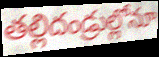
తల్లిదండ్రుల్లోనూ